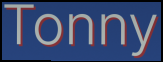
Tonny